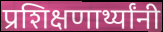
प्रशिक्षणार्थ्यांनी